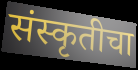
संस्कृतीचा